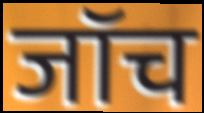
जॉच